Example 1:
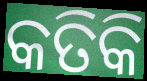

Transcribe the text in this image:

କତିକି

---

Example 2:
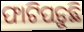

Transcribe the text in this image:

ଫାଟିପଡ଼ୁଛି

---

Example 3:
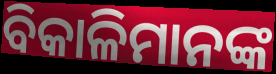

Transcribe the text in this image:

ବିକାଳିମାନଙ୍କ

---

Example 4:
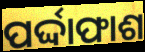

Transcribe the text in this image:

ପର୍ଦ୍ଦାଫାଶ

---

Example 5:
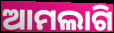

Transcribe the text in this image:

ଆମଲାଗି